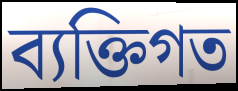
ব্যক্তিগত